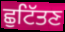
ਛੁਟਿੱਤਣ